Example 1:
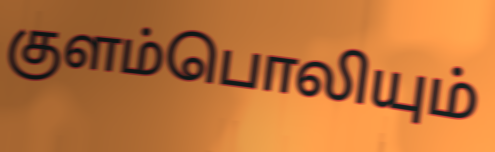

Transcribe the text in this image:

குளம்பொலியும்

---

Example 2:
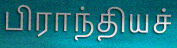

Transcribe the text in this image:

பிராந்தியச்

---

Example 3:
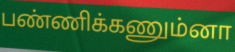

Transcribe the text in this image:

பண்ணிக்கணும்னா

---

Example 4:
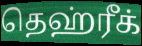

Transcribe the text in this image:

தெஹ்ரீக்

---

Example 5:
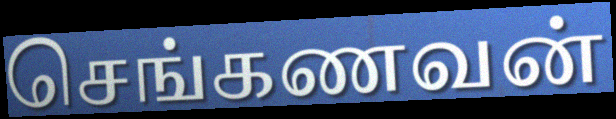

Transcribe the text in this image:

செங்கணவன்